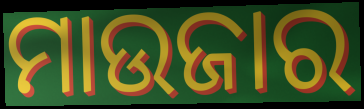
ମାଉଜାର